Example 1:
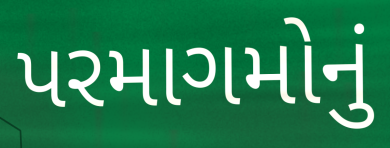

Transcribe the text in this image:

પરમાગમોનું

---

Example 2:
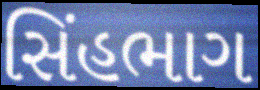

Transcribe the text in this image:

સિંહભાગ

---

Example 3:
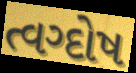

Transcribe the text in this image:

ત્વગ્દોષ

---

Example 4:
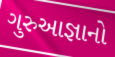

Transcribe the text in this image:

ગુરુઆજ્ઞાનો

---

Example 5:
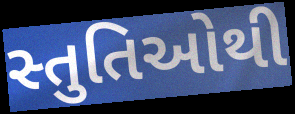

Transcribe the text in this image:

સ્તુતિઓથી